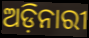
ଅଡ଼ିନାରୀ